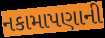
નકામાપણાની